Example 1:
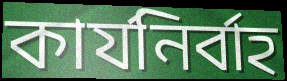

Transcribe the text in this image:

কাৰ্যনিৰ্বাহ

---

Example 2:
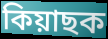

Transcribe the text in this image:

কিয়াছক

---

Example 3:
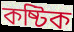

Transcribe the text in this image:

কষ্টিক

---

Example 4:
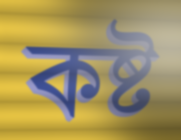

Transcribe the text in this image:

কষ্ট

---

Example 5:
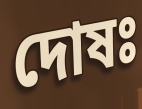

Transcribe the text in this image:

দোষঃ